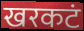
खरकटं